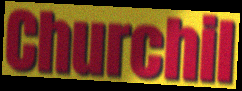
Churchil